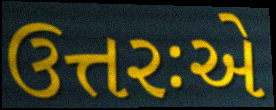
ઉત્તરઃએ